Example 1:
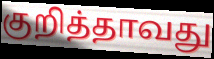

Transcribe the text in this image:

குறித்தாவது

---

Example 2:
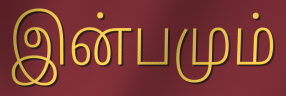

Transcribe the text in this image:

இன்பமும்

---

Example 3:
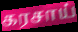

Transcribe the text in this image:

கரசாய்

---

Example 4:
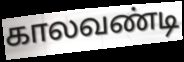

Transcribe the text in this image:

காலவண்டி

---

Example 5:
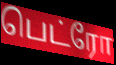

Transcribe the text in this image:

பெட்ரோ